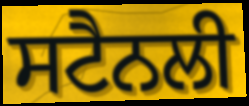
ਸਟੈਨਲੀ